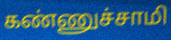
கண்ணுச்சாமி